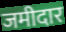
जमीदार